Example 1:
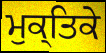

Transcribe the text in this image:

ਮੁਕ੍ਤਿਕੇ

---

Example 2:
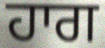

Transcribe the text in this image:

ਹਾਗ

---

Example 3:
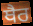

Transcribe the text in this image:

ਥੈਰ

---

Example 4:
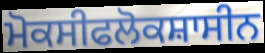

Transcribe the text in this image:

ਮੋਕਸੀਫਲੋਕਸ਼ਾਸੀਨ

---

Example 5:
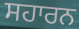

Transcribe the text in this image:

ਸਹਾਰਨ